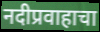
नदीप्रवाहाचा